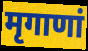
मृगाणां